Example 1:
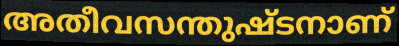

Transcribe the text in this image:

അതീവസന്തുഷ്ടനാണ്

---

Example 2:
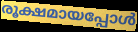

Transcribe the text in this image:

രൂക്ഷമായപ്പോൾ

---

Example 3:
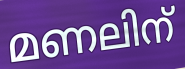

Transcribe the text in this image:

മണലിന്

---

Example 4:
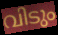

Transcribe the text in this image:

വിടും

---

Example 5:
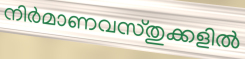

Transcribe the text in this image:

നിർമാണവസ്തുക്കളിൽ